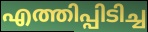
എത്തിപ്പിടിച്ച